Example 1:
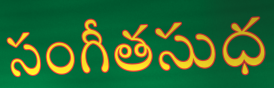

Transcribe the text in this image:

సంగీతసుధ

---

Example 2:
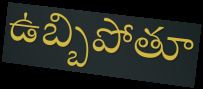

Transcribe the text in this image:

ఉబ్బిపోతూ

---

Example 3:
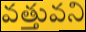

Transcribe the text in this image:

వత్తువని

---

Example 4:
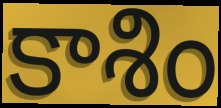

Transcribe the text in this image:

కాశిం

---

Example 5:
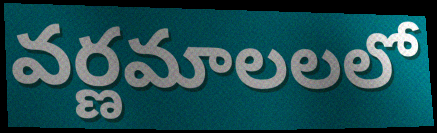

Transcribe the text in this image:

వర్ణమాలలలో